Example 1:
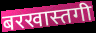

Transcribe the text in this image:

बरखास्तगी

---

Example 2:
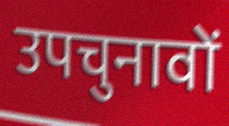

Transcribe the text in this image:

उपचुनावों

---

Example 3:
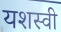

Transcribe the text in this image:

यशस्वी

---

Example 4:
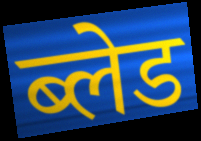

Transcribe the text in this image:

ब्लेड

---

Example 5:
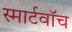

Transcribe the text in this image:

स्मार्टवॉच